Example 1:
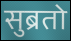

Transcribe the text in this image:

सुब्रतो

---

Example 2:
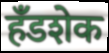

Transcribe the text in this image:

हँडशेक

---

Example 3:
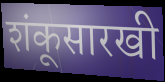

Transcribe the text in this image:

शंकूसारखी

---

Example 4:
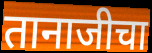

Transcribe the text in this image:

तानाजीचा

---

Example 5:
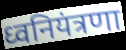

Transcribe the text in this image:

ध्वनियंत्रणा